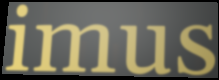
imus